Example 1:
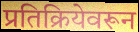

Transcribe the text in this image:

प्रतिक्रियेवरून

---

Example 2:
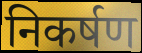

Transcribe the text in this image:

निकर्षण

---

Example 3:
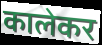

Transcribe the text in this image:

कालेकर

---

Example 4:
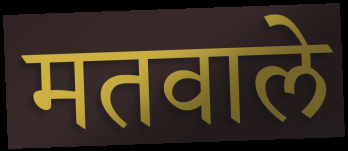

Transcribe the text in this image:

मतवाले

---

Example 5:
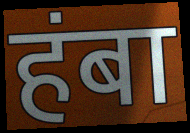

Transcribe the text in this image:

हंबा